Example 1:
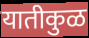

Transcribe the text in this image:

यातीकुळ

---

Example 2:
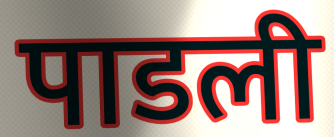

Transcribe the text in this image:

पाडली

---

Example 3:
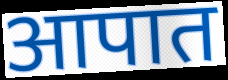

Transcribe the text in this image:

आपात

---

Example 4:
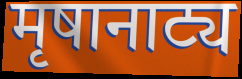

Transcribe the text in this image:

मृषानाट्य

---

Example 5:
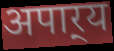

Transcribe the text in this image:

अपार्य